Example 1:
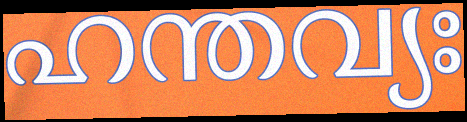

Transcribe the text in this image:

ഹന്തവ്യഃ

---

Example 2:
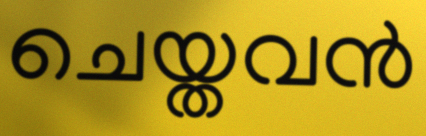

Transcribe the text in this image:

ചെയ്തവൻ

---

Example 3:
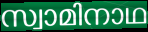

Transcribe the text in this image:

സ്വാമിനാഥ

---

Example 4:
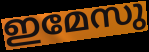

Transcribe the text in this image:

ഇമേസു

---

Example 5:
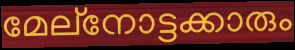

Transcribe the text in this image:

മേല്നോട്ടക്കാരും